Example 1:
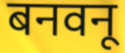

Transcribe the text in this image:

बनवनू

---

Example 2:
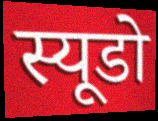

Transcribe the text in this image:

स्यूडो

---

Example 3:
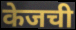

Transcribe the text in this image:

केजची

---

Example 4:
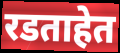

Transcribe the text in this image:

रडताहेत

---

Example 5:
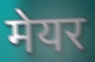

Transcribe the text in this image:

मेयर